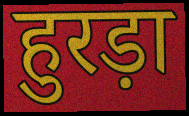
हुरड़ा